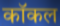
कॉकल